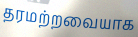
தரமற்றவையாக